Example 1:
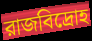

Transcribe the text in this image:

রাজবিদ্রোহ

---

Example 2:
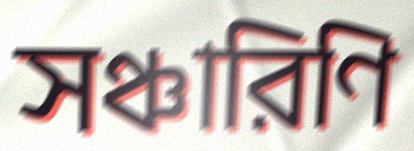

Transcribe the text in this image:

সঞ্চারিণি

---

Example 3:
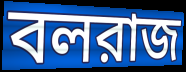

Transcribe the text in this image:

বলরাজ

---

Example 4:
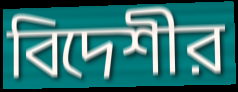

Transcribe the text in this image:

বিদেশীর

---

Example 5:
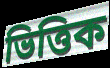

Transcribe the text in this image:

ভিত্তিক